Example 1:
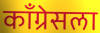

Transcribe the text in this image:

काँग्रेसला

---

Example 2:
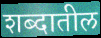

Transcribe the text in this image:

शब्दातील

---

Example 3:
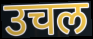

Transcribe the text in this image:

उचल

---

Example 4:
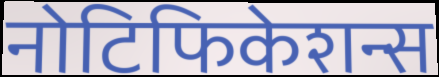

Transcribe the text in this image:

नोटिफिकेशन्स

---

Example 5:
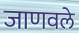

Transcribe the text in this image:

जाणवले